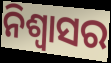
ନିଶ୍ବାସର